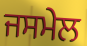
ਜਸਮੇਲ